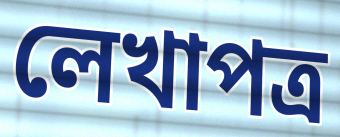
লেখাপত্র